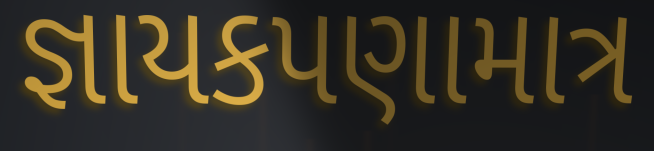
જ્ઞાયકપણામાત્ર